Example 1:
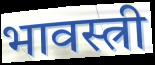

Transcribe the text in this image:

भावस्त्री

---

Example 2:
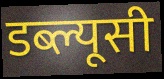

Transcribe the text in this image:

डब्ल्यूसी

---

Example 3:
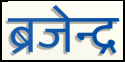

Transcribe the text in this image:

ब्रजेन्द्र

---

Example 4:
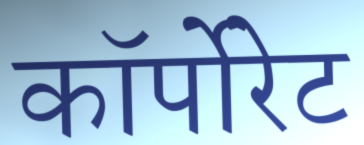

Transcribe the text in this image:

कॉर्पोरेट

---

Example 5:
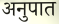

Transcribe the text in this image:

अनुपात